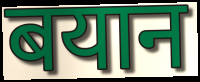
बयान